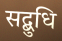
सद्बुधि